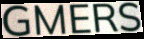
GMERS